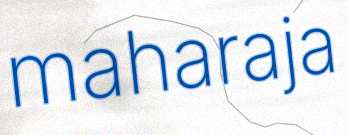
maharaja